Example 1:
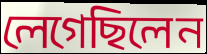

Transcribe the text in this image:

লেগেছিলেন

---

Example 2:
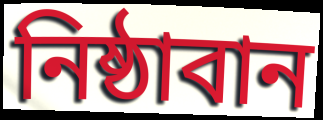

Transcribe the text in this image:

নিষ্ঠাবান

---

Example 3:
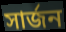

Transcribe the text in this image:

সার্জন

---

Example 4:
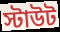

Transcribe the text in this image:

স্টাউট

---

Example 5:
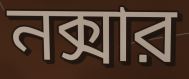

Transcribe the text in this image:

নক্সার